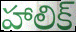
హాలిక్